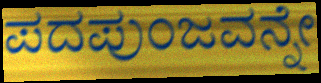
ಪದಪುಂಜವನ್ನೇ